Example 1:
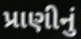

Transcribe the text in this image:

પ્રાણીનું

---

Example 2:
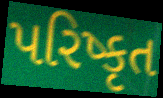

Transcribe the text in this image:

પરિષ્કૃત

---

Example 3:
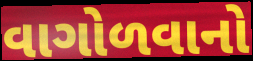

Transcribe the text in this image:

વાગોળવાનો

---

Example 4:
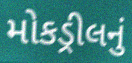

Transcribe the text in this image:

મોકડ્રીલનું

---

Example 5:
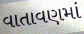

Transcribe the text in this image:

વાતાવણમાં